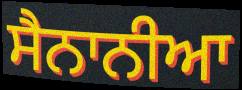
ਸੈਨਾਨੀਆ